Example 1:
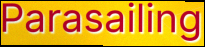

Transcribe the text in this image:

Parasailing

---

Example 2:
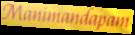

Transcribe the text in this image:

Manimandapam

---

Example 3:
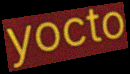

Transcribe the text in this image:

yocto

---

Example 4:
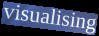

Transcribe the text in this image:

visualising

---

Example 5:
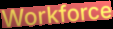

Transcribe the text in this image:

Workforce